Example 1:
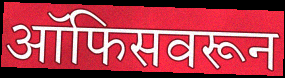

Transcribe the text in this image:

ऑफिसवरून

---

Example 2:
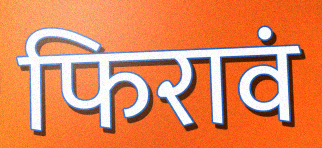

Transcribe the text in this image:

फिरावं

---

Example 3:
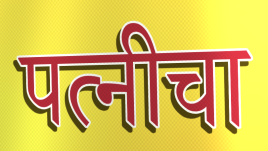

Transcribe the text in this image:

पत्नीचा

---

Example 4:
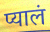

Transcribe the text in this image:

प्यालं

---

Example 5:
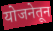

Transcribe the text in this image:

योजनेतून